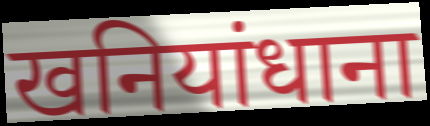
खनियांधाना